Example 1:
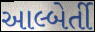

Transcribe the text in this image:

આલ્બેર્તી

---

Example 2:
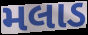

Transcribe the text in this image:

મલાડ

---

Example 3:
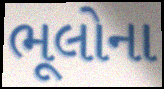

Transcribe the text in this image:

ભૂલોના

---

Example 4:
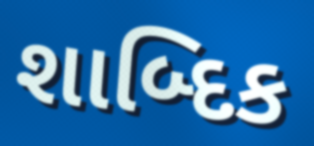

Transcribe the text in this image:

શાબ્દિક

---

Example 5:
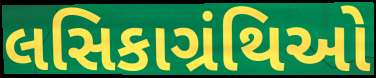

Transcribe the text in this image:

લસિકાગ્રંથિઓ